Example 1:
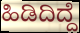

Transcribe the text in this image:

ಹಿಡಿದಿದ್ದೆ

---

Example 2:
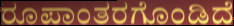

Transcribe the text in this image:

ರೂಪಾಂತರಗೊಂಡಿದೆ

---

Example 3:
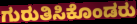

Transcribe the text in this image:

ಗುರುತಿಸಿಕೊಂಡರು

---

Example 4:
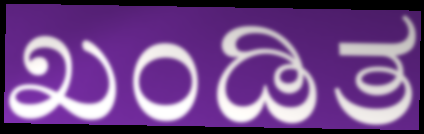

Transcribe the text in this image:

ಖಂಡಿತ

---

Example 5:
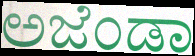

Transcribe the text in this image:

ಅಜೆಂಡಾ